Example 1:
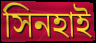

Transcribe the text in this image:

সিনহাই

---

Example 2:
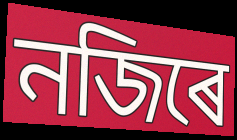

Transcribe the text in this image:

নজিৰে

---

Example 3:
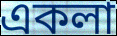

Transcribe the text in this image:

একলা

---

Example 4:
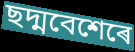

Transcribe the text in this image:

ছদ্মবেশেৰে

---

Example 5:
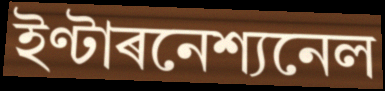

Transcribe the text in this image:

ইণ্টাৰনেশ্যনেল